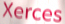
Xerces